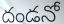
దండనో